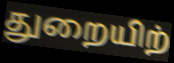
துறையிற்